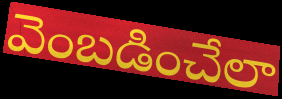
వెంబడించేలా